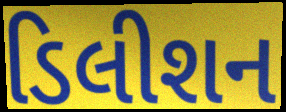
ડિલીશન